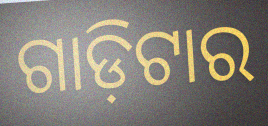
ଗାଡ଼ିଟାର